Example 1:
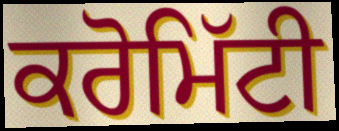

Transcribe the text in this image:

ਕਰੋਮਿੱਟੀ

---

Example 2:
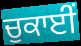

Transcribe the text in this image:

ਚੁਕਾਈਂ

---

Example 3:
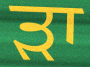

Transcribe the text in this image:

ੜਾ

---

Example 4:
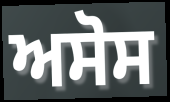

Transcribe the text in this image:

ਅਸੋਸ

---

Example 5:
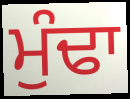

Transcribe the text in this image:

ਮੁੰਢਾ